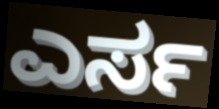
ಎರ್ಸ